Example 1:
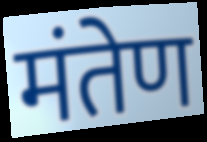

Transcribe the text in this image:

मंतेण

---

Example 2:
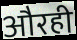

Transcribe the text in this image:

औरही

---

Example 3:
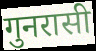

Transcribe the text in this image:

गुनरासी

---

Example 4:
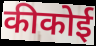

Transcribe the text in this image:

कीकोई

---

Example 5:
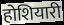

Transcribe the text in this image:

होशियारी